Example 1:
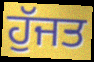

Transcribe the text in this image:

ਹੁੱਜਤ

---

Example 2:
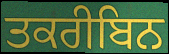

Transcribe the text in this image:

ਤਕਰੀਬਿਨ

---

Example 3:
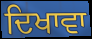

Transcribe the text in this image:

ਦਿਖਾਵਾ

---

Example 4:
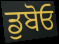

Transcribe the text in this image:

ਡੁਬੋਓ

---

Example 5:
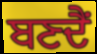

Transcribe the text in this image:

ਬਣਦੈਂ